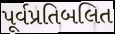
પૂર્વપ્રતિબલિત